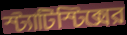
স্ট্যাটিস্টিক্সের